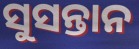
ସୁସନ୍ତାନ